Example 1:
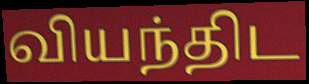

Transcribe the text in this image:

வியந்திட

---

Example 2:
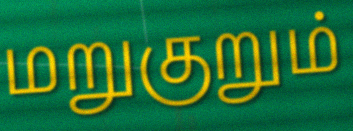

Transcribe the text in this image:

மறுகுறும்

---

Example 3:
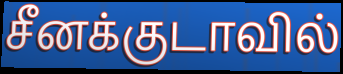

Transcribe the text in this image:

சீனக்குடாவில்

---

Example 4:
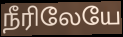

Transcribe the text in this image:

நீரிலேயே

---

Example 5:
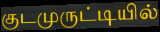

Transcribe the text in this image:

குடமுருட்டியில்